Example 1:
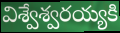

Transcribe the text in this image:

విశ్వేశ్వరయ్యకి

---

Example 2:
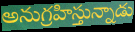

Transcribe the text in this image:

అనుగ్రహిస్తున్నాడు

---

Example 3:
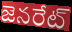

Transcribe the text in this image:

జెనరేట్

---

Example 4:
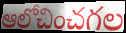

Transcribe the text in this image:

ఆలోచించగల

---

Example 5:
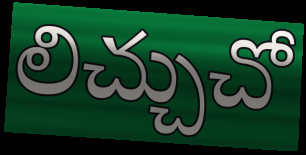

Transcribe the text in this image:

లిచ్చుచో